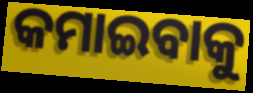
କମାଇବାକୁ